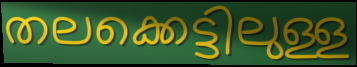
തലക്കെട്ടിലുള്ള